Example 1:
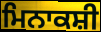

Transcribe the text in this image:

ਮਿਨਾਕਸ਼ੀ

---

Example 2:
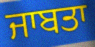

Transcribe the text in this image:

ਜਾਬਤਾ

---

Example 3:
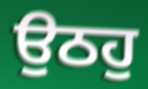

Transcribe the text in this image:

ਉਠਹੁ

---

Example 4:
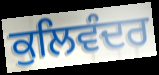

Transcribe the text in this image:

ਕੁਲਿਵੰਦਰ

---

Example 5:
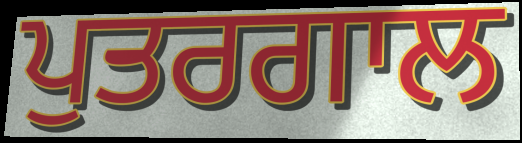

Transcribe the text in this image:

ਪੁਤਰਗਾਲ